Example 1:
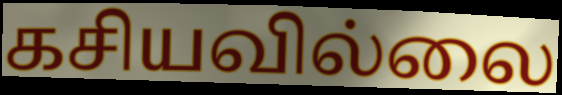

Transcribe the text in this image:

கசியவில்லை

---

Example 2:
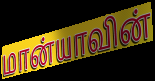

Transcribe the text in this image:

மான்யாவின்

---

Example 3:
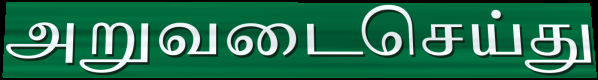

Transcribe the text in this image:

அறுவடைசெய்து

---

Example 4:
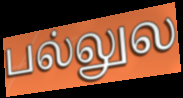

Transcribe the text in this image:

பல்லுல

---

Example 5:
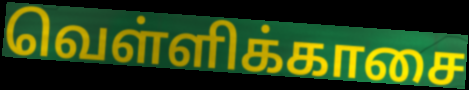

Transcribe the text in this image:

வெள்ளிக்காசை